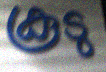
കൂടു